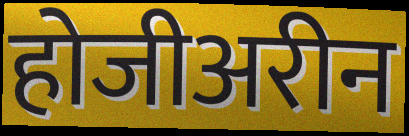
होजीअरीन